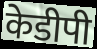
केडीपी